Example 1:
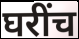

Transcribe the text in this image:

घरींच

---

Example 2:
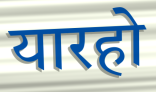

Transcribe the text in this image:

यारहो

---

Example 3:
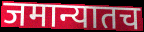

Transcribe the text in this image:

जमान्यातच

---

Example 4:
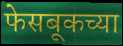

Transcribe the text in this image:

फेसबूकच्या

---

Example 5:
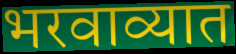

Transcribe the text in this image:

भरवाव्यात